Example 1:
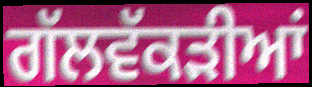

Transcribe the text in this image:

ਗੱਲਵੱਕੜੀਆਂ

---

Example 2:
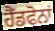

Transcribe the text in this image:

ਹੈੱਡਫੋਨਾਂ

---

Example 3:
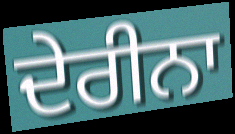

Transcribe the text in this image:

ਦੇਰੀਨਾ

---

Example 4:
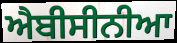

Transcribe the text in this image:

ਐਬੀਸੀਨੀਆ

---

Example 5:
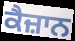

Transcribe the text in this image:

ਕੈਜ਼ਾਨ